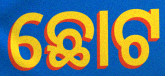
ଛୋଟ